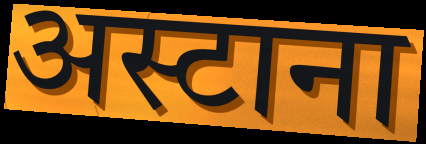
अस्टाना